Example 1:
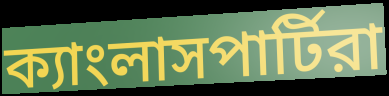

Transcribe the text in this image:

ক্যাংলাসপার্টিরা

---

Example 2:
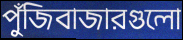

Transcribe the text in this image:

পুঁজিবাজারগুলো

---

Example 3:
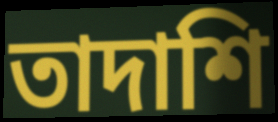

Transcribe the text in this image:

তাদাশি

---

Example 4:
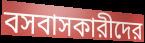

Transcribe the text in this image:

বসবাসকারীদের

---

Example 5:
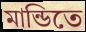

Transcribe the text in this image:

মান্ডিতে